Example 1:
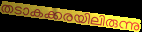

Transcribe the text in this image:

തടാകക്കരയിലിരുന്നു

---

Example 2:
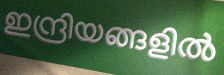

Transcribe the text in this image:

ഇന്ദ്രിയങ്ങളിൽ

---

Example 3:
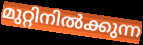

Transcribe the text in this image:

മുറ്റിനിൽക്കുന്ന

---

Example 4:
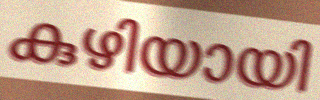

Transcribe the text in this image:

കുഴിയായി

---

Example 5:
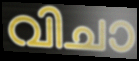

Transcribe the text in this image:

വിചാ